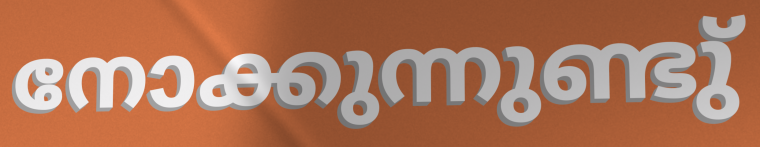
നോക്കുന്നുണ്ടു്